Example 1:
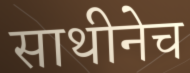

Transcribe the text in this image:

साथीनेच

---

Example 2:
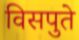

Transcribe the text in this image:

विसपुते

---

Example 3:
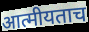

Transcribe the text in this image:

आत्मीयताच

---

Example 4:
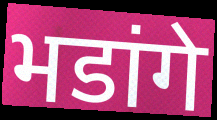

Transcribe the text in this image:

भडांगे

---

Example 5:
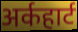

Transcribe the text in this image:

अर्कहार्ट